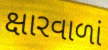
ક્ષારવાળાં